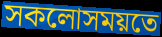
সকলোসময়তে